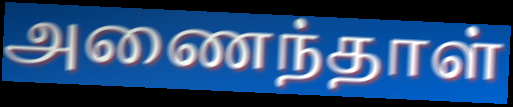
அணைந்தாள்